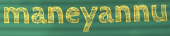
maneyannu